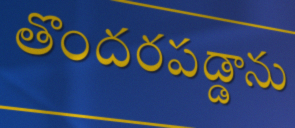
తొందరపడ్డాను